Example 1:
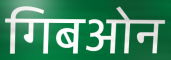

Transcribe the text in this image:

गिबओन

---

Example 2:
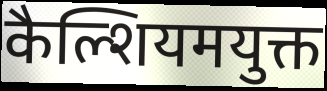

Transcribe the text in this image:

कैल्शियमयुक्त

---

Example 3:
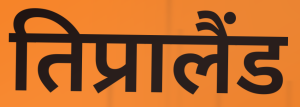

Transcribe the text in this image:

तिप्रालैंड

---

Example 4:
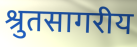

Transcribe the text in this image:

श्रुतसागरीय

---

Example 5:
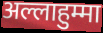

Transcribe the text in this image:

अल्लाहुम्मा